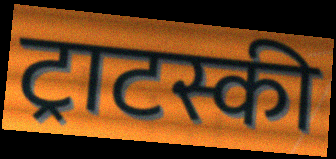
ट्राटस्की